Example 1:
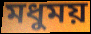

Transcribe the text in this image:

মধুময়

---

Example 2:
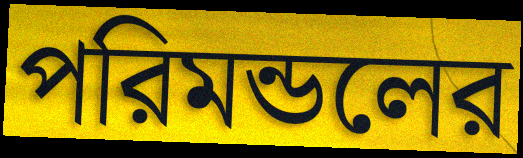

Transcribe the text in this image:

পরিমন্ডলের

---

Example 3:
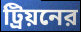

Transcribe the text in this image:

ট্রিয়নের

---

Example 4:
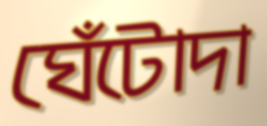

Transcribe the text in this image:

ঘেঁটোদা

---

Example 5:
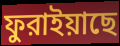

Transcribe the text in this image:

ফুরাইয়াছে